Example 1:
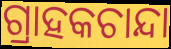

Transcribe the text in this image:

ଗ୍ରାହକଚାନ୍ଦା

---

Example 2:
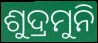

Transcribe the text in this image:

ଶୁଦ୍ରମୁନି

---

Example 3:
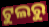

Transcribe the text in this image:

ଟୁଲରୁ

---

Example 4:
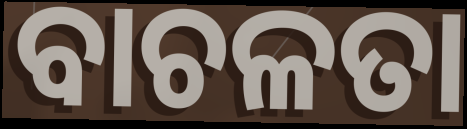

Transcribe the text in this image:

ବାଚଳତା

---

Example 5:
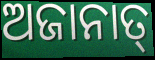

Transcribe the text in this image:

ଅଜାନାତ୍